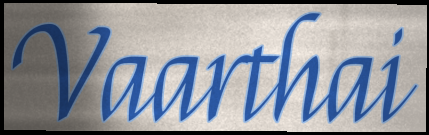
Vaarthai